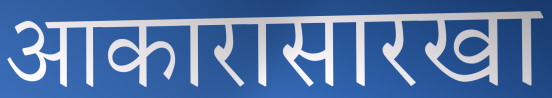
आकारासारखा